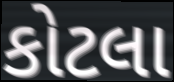
કોટલા